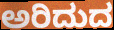
ಅರಿದುದ